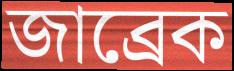
জাব্রেক